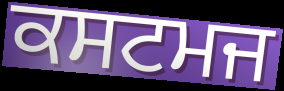
ਕਸਟਮਜ